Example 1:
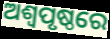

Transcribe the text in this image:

ଅଶ୍ଵପୃଷ୍ଠରେ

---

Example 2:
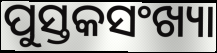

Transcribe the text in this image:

ପୁସ୍ତକସଂଖ୍ୟା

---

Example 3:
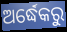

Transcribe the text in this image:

ଅର୍ଦ୍ଧେକରୁ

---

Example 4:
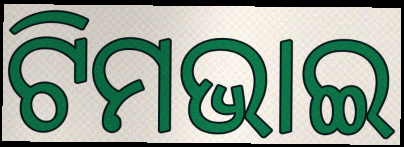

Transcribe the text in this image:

ଟିମଭାଇ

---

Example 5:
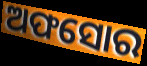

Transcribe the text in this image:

ଅଫସୋର